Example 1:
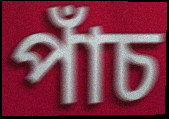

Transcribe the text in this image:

পাঁচ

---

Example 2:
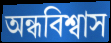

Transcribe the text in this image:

অন্ধবিশ্বাস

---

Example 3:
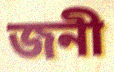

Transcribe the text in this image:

জনী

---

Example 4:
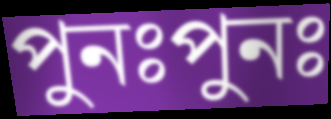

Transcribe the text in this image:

পুনঃপুনঃ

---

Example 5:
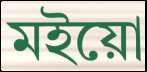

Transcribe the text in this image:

মইয়ো